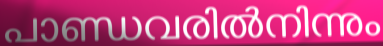
പാണ്ഡവരിൽനിന്നും